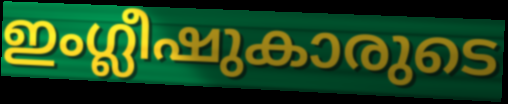
ഇംഗ്ലീഷുകാരുടെ